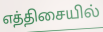
எத்திசையில்